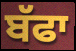
ਬੱਫਾ